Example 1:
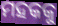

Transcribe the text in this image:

ମହକକୁ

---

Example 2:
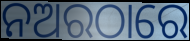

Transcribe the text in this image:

ନଅରଠାରେ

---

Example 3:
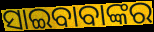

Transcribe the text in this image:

ସାଇବାବାଙ୍କର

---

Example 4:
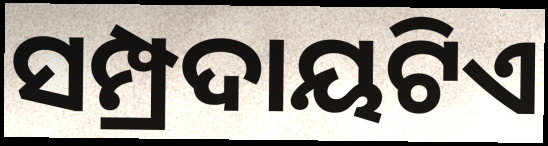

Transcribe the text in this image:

ସମ୍ପ୍ରଦାୟଟିଏ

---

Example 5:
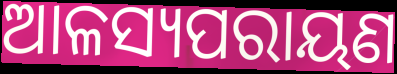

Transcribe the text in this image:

ଆଳସ୍ୟପରାୟଣ